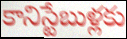
కానిస్టేబుళ్లకు